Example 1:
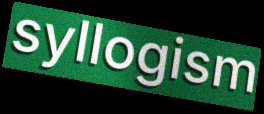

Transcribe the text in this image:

syllogism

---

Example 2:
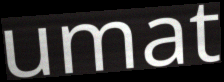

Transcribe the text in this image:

umat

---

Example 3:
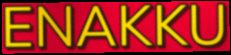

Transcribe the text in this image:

ENAKKU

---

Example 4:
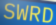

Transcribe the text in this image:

SWRD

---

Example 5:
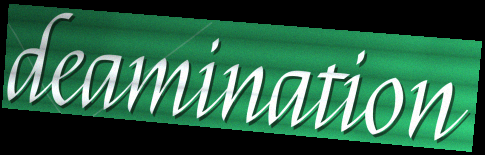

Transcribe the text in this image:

deamination